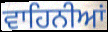
ਵਾਹਿਨੀਆਂ